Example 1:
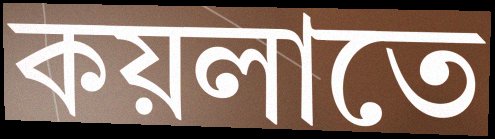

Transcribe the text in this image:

কয়লাতে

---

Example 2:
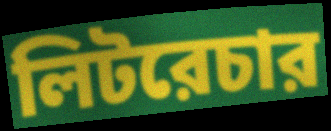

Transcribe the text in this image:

লিটরেচার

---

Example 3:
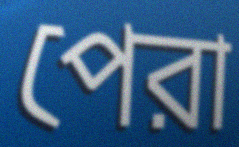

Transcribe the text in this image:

পেরা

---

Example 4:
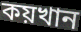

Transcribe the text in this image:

কয়খান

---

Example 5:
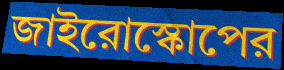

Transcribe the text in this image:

জাইরোস্কোপের